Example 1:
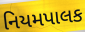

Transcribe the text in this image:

નિયમપાલક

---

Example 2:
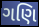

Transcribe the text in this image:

ગણિ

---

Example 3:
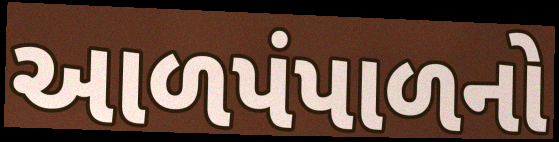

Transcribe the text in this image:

આળપંપાળનો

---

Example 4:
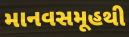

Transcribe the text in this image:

માનવસમૂહથી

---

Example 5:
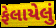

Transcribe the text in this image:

ફેલાયેલું